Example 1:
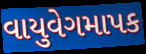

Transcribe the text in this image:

વાયુવેગમાપક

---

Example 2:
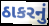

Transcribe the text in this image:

ઠાકરનું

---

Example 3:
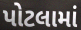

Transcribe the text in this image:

પોટલામાં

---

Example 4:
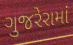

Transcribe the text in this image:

ગુજરેરામાં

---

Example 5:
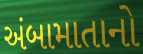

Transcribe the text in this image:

અંબામાતાનો